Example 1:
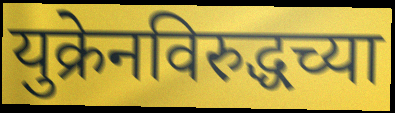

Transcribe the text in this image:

युक्रेनविरुद्धच्या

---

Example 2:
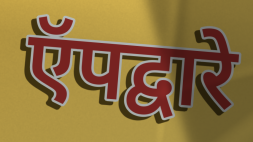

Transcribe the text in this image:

ऍपद्वारे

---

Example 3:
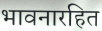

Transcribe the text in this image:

भावनारहित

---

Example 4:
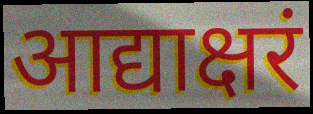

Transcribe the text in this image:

आद्याक्षरं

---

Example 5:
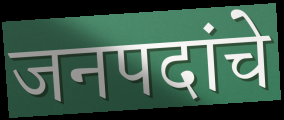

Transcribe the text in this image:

जनपदांचे